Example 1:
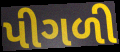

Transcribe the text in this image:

પીગળી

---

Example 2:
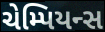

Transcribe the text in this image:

ચેમ્પિયન્સ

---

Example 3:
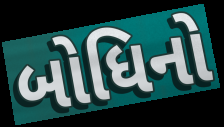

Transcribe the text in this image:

બોધિનો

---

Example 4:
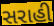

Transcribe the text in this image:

સરાહી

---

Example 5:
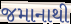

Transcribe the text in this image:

જમાનાથી